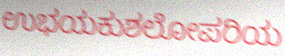
ಉಭಯಕುಶಲೋಪರಿಯ